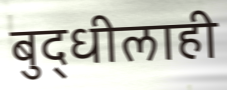
बुद्धीलाही